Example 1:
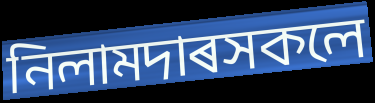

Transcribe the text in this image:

নিলামদাৰসকলে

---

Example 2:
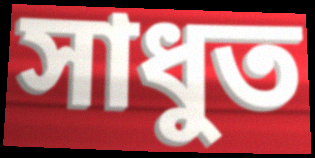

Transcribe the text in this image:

সাধুত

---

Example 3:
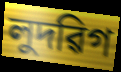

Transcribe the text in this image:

লুদৱিগ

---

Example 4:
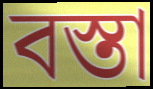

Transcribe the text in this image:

বস্তা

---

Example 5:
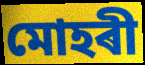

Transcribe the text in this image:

মোহৰী